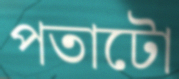
পতাটো